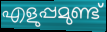
എളുപ്പമുണ്ട്